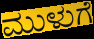
ಮುಳುಗೆ